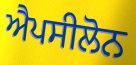
ਐਪਸੀਲੋਨ